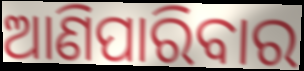
ଆଣିପାରିବାର